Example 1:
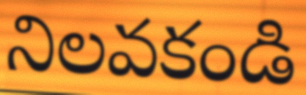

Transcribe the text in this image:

నిలవకండి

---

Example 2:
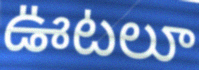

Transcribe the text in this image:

ఊటలూ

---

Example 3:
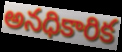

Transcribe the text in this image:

అనధికారిక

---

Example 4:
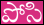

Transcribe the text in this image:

పోసి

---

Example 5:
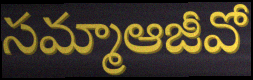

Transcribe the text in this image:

సమ్మాఆజీవో